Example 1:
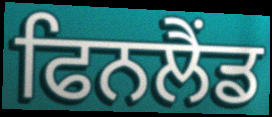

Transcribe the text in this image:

ਫਿਨਲੈਂਡ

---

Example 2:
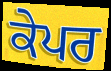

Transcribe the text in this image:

ਕੇਪਰ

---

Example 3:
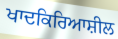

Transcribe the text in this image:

ਖਾਦਕਿਰਿਆਸ਼ੀਲ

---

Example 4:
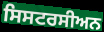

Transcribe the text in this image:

ਸਿਸਟਰਸੀਅਨ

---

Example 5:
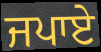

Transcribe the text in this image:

ਜਪਾਏ